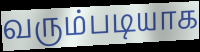
வரும்படியாக